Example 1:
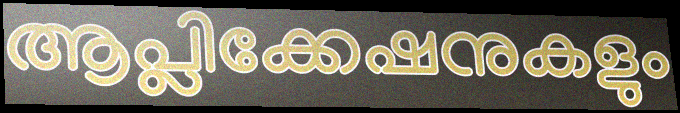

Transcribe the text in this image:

ആപ്ലിക്കേഷനുകളും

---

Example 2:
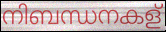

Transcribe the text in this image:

നിബന്ധനകള്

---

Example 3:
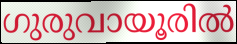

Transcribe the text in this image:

ഗുരുവായൂരിൽ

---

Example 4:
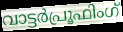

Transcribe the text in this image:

വാട്ടർപ്രൂഫിംഗ്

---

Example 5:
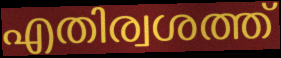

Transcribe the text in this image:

എതിര്വശത്ത്